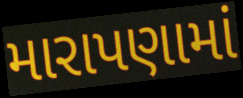
મારાપણામાં